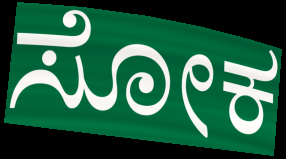
ಸೋಕ